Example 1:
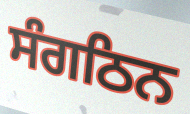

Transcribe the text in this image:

ਸੰਗਠਿਨ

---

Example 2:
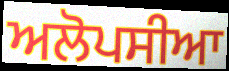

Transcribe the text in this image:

ਅਲੋਪਸੀਆ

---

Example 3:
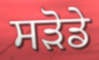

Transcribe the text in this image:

ਸੜੋਡੇ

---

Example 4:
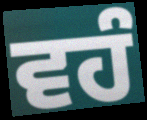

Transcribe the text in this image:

ਵਹੰ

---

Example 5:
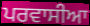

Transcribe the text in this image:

ਪਰਵਾਸੀਆ